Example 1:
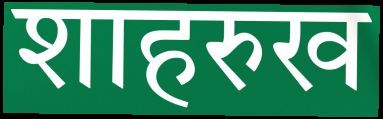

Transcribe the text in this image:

शाहरुख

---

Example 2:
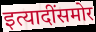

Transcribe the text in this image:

इत्यादींसमोर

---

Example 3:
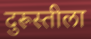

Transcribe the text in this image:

दुरूस्तीला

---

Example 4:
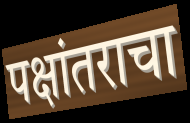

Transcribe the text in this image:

पक्षांतराचा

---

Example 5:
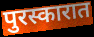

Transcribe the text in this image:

पुरस्कारात